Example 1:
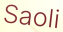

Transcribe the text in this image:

Saoli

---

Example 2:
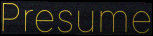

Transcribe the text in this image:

Presume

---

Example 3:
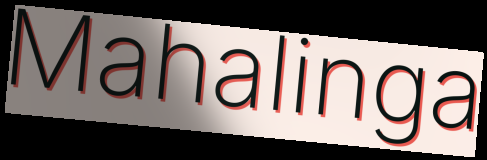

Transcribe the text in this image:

Mahalinga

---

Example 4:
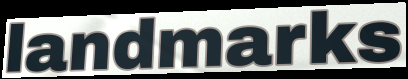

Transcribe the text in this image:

landmarks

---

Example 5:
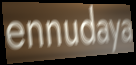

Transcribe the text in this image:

ennudaya